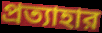
প্রত্যাহার